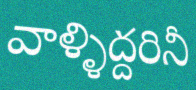
వాళ్ళిద్దరినీ